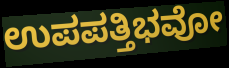
ಉಪಪತ್ತಿಭವೋ